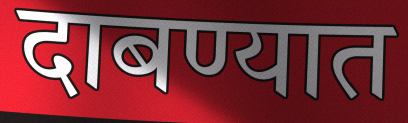
दाबण्यात